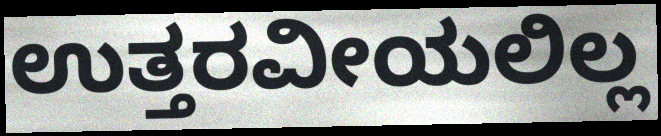
ಉತ್ತರವೀಯಲಿಲ್ಲ